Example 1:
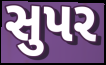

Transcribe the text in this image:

સુપર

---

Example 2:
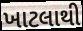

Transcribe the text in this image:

ખાટલાથી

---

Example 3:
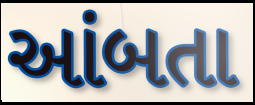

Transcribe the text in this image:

આંબતા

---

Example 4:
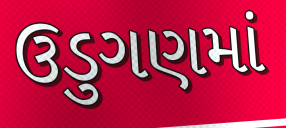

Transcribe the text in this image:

ઉડુગણમાં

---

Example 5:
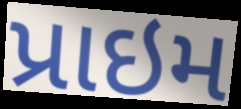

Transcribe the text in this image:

પ્રાઇમ